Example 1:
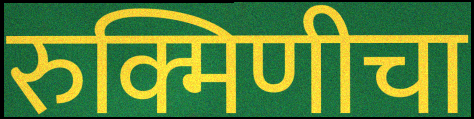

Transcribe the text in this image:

रुक्मिणीचा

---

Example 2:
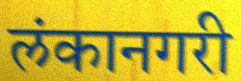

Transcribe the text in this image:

लंकानगरी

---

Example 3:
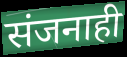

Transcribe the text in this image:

संजनाही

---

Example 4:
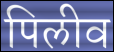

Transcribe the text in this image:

पिलीव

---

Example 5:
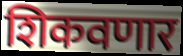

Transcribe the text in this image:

शिकवणार